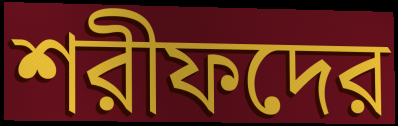
শরীফদের